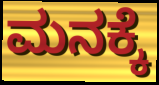
ಮನಕ್ಕೆ